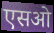
एसओ